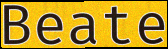
Beate